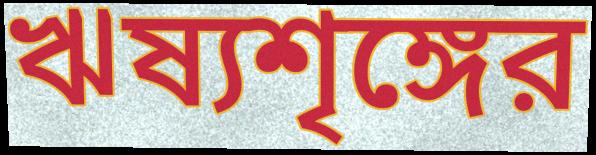
ঋষ্যশৃঙ্গের